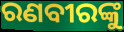
ରଣବୀରଙ୍କୁ